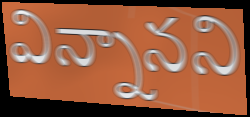
విన్నానని